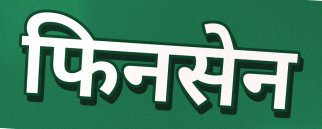
फिनसेन